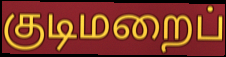
குடிமறைப்